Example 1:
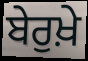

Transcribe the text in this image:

ਬੇਰੁਖ਼ੇ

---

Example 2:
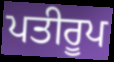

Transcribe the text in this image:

ਪਤੀਰੂਪ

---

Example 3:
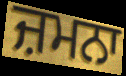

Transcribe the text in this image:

ਜ਼ਮਨਾ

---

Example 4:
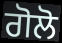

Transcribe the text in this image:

ਗੋਲੋ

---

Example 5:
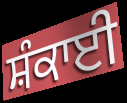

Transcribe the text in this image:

ਸ਼ੰਕਾਈ